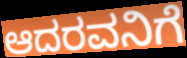
ಆದರವನಿಗೆ